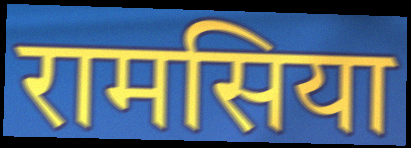
रामसिया